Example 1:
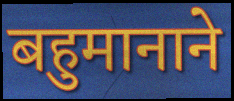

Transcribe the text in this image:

बहुमानाने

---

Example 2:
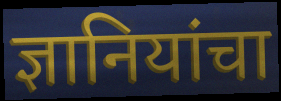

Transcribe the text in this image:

ज्ञानियांचा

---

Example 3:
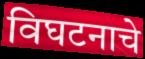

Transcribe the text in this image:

विघटनाचे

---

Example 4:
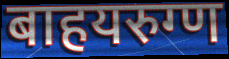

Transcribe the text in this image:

बाहयरुग्ण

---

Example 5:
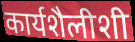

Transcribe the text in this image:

कार्यशैलीशी